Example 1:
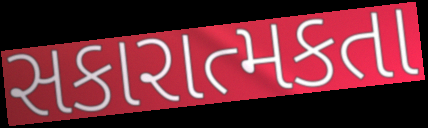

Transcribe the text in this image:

સકારાત્મકતા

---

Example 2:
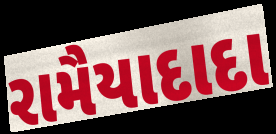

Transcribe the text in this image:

રામૈયાદાદા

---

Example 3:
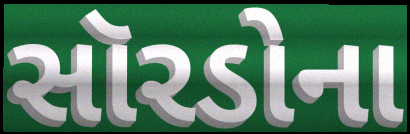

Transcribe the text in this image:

સૉરડોના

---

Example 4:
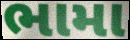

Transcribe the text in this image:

ભામા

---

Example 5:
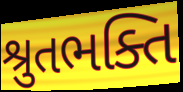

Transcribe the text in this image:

શ્રુતભક્તિ